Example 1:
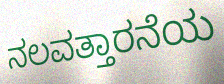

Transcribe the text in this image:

ನಲವತ್ತಾರನೆಯ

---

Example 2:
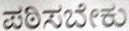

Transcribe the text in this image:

ಪಠಿಸಬೇಕು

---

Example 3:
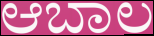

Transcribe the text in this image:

ಆಬಾಲ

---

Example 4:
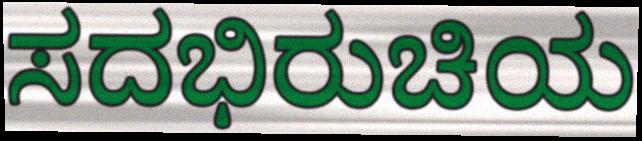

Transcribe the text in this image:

ಸದಭಿರುಚಿಯ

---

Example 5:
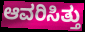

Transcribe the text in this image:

ಆವರಿಸಿತ್ತು